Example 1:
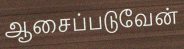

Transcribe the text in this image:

ஆசைப்படுவேன்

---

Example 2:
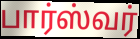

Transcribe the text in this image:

பார்ஸ்வர்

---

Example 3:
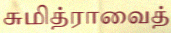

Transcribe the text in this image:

சுமித்ராவைத்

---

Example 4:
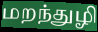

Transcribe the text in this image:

மறந்துழி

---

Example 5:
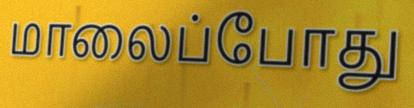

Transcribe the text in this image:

மாலைப்போது